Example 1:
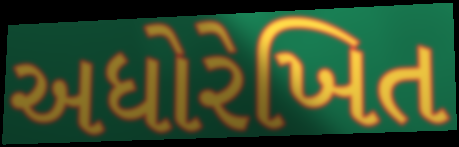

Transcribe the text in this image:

અધોરેખિત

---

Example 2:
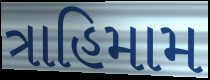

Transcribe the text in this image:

ત્રાહિમામ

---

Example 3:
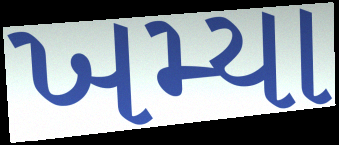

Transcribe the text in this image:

ખમ્યા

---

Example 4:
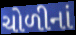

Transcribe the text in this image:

ચોળીનાં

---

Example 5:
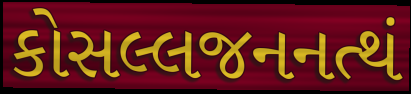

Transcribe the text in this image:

કોસલ્લજનનત્થં